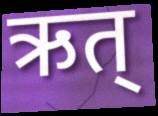
ऋत्